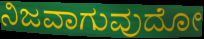
ನಿಜವಾಗುವುದೋ